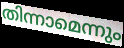
തിന്നാമെന്നും